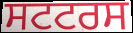
ਸਟਟਰਸ